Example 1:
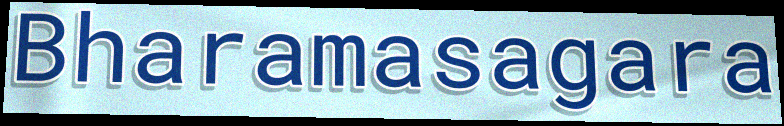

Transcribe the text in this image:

Bharamasagara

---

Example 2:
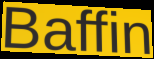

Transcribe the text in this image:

Baffin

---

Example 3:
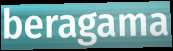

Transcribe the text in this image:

beragama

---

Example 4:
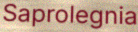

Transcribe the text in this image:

Saprolegnia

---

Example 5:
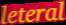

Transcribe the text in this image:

leteral